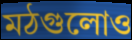
মঠগুলোও